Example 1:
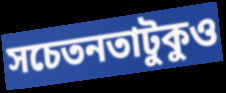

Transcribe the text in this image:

সচেতনতাটুকুও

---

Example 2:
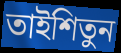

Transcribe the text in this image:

তাইশিতুন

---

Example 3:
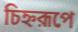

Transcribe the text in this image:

চিহ্নরূপে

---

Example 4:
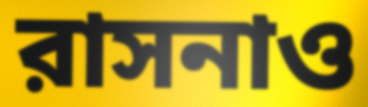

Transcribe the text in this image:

রাসনাও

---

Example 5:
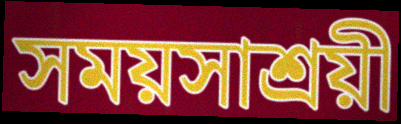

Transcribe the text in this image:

সময়সাশ্রয়ী